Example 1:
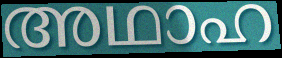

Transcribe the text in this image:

അഥാഹ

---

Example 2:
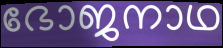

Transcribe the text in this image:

ഭോജനാഥ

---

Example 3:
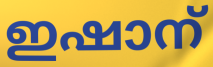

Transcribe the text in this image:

ഇഷാന്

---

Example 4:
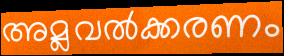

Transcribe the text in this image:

അമ്ലവൽക്കരണം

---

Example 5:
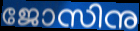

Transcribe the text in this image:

ജോസിനു